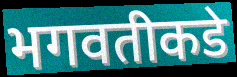
भगवतीकडे